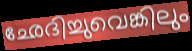
ഛേദിച്ചുവെങ്കിലും